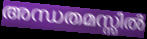
അന്ധതമസ്സിൽ